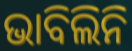
ଭାବିଲିନି